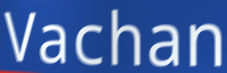
Vachan